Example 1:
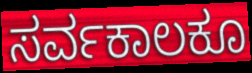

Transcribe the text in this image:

ಸರ್ವಕಾಲಕೂ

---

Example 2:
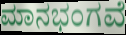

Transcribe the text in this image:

ಮಾನಭಂಗವೆ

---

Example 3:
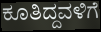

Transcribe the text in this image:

ಕೂತಿದ್ದವಳಿಗೆ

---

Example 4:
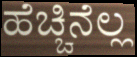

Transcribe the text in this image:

ಹೆಚ್ಚಿನೆಲ್ಲ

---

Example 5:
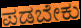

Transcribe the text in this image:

ಪಡಬೇಕು